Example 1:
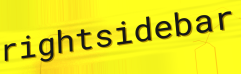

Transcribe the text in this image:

rightsidebar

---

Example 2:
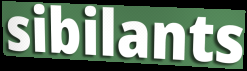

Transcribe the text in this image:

sibilants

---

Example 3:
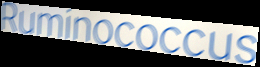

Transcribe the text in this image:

Ruminococcus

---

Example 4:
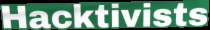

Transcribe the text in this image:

Hacktivists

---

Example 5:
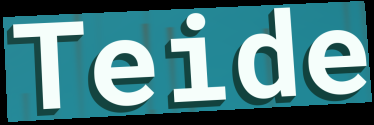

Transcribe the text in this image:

Teide